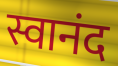
स्वानंद